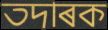
তদাৰক